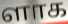
ளாக